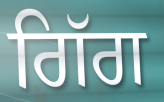
ਗਿੱਗ